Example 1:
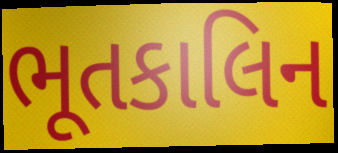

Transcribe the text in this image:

ભૂતકાલિન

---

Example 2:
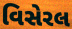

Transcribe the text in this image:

વિસેરલ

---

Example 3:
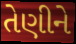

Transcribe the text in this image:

તેણીને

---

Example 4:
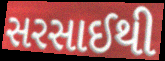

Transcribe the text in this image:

સરસાઈથી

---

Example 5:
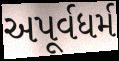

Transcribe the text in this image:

અપૂર્વધર્મ